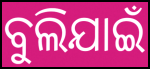
ବୁଲିଯାଇଁ